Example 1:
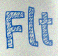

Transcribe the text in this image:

Flt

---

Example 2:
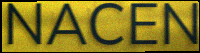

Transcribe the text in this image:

NACEN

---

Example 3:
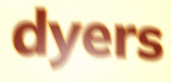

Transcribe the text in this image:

dyers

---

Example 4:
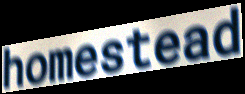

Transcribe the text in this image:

homestead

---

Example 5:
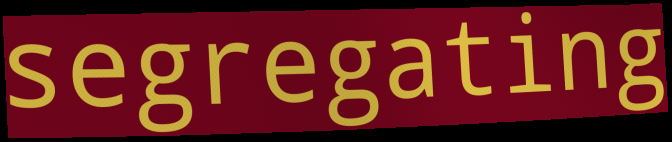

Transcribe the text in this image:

segregating